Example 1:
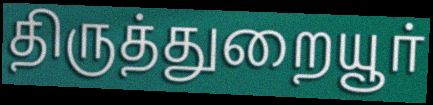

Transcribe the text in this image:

திருத்துறையூர்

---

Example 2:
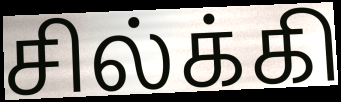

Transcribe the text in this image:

சில்க்கி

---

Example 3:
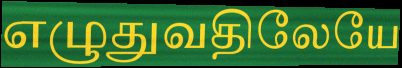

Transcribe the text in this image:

எழுதுவதிலேயே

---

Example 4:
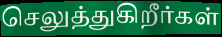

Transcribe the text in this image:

செலுத்துகிறீர்கள்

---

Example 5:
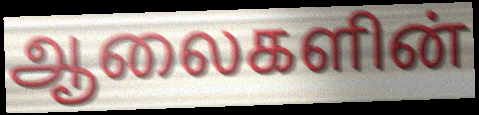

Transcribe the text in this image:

ஆலைகளின்